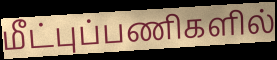
மீட்புப்பணிகளில்